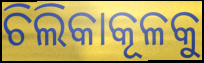
ଚିଲିକାକୂଳକୁ